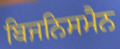
ਬਿਜਨਿਸਮੈਨ